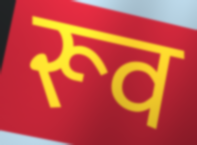
रूव